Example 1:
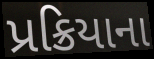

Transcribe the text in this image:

પ્રક્રિયાના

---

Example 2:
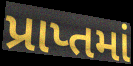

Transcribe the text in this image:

પ્રાપ્તમાં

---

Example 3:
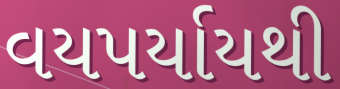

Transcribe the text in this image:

વયપર્યાયથી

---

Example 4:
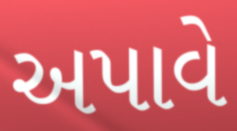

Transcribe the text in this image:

અપાવે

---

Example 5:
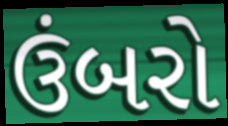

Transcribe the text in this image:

ઉંબરો